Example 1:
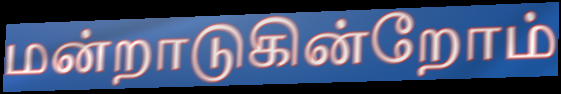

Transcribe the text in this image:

மன்றாடுகின்றோம்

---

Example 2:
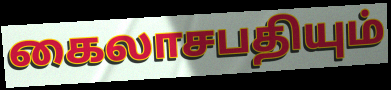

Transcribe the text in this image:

கைலாசபதியும்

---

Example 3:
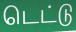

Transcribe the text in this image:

டெட்டு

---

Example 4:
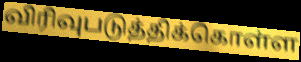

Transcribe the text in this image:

விரிவுபடுத்திக்கொள்ள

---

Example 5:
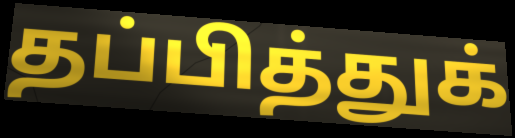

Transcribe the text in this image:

தப்பித்துக்